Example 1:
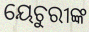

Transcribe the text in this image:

ୟେଚୁରୀଙ୍କ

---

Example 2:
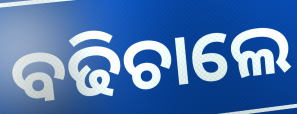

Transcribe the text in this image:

ବଢିଚାଲେ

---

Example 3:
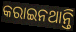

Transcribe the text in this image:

କରାଇନଥାନ୍ତି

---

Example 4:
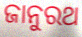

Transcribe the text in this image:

ଜାନୁରଥ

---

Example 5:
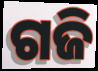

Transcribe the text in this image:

ଗଜି